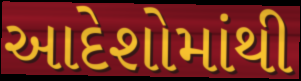
આદેશોમાંથી